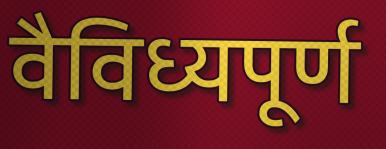
वैविध्यपूर्ण